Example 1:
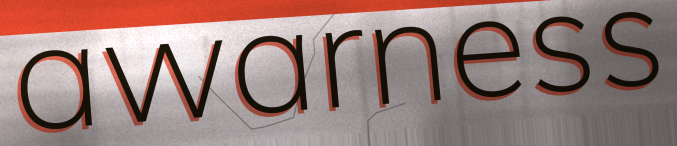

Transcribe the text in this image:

awarness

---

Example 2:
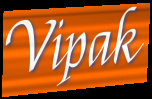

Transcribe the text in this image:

Vipak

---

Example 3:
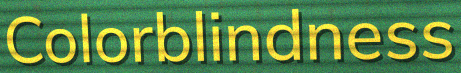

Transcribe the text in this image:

Colorblindness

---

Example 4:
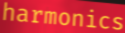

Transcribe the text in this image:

harmonics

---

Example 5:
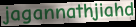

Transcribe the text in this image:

jagannathjiahd